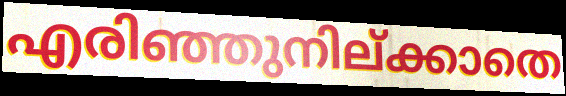
എരിഞ്ഞുനില്ക്കാതെ